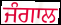
ਜੰਗਾਲ